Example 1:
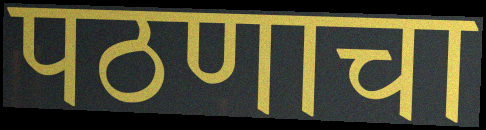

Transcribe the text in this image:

पठणाचा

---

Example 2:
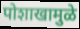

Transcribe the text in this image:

पोशाखामुळे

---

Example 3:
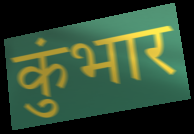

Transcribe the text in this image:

कुंभार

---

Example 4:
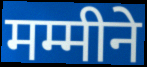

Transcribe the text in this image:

मम्मीने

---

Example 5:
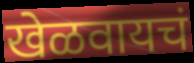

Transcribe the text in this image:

खेळवायचं